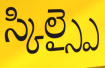
స్కిల్స్పై